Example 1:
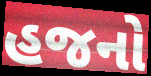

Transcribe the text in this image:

હજનો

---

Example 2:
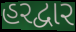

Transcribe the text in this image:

હરદ્વાર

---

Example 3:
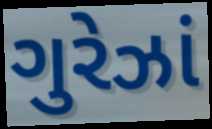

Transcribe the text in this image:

ગુરેઝાં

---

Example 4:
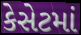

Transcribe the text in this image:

કેસેટમાં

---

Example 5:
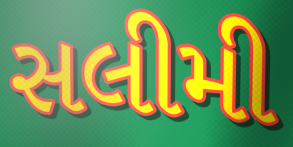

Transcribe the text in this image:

સલીમી